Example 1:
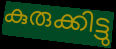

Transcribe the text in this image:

കുരുക്കിട്ടു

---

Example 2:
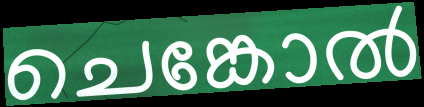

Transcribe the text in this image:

ചെങ്കോൽ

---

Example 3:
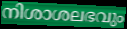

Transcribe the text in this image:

നിശാശലഭവും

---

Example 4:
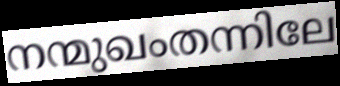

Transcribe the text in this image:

നന്മുഖംതന്നിലേ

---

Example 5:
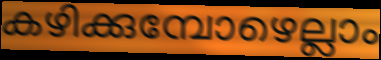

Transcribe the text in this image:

കഴിക്കുമ്പോഴെല്ലാം